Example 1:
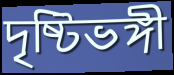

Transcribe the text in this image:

দৃষ্টিভঙ্গী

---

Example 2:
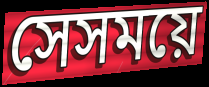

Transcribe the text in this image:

সেসময়ে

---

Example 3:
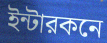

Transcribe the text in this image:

ইন্টারকনে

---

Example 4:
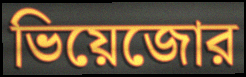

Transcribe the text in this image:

ভিয়েজোর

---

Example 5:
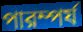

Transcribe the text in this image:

পারম্পর্য